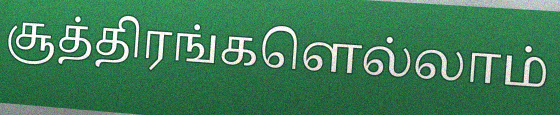
சூத்திரங்களெல்லாம்